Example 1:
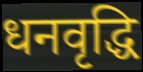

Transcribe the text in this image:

धनवृद्धि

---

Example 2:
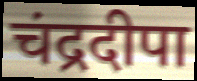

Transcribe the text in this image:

चंद्रदीपा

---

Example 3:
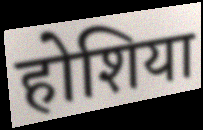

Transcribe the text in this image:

होशिया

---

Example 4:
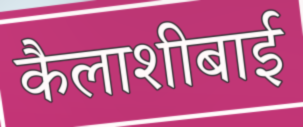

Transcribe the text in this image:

कैलाशीबाई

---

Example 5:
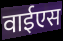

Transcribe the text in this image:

वाईएस